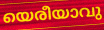
യെരീയാവു